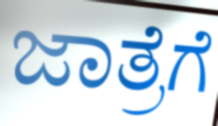
ಜಾತ್ರೆಗೆ